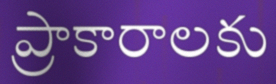
ప్రాకారాలకు